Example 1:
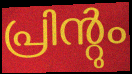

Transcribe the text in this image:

പ്രിന്റും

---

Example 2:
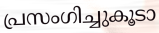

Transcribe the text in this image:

പ്രസംഗിച്ചുകൂടാ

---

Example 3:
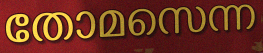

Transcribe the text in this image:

തോമസെന്ന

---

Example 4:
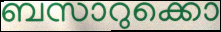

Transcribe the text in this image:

ബസാറുക്കൊ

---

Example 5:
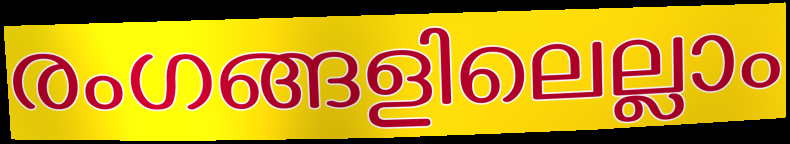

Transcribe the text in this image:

രംഗങ്ങളിലെല്ലാം